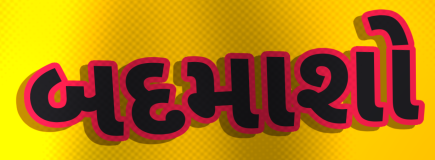
બદમાશો